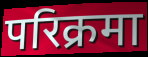
परिक्रमा